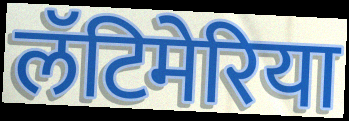
लॅटिमेरिया